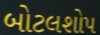
બોટલશોપ